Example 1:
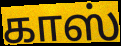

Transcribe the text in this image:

காஸ்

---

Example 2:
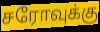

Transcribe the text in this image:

சரோவுக்கு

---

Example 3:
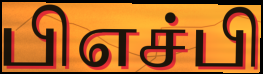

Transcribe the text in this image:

பிஎச்பி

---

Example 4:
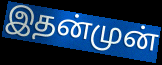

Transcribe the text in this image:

இதன்முன்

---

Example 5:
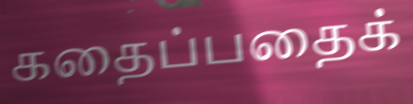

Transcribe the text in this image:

கதைப்பதைக்